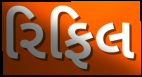
રિફિલ